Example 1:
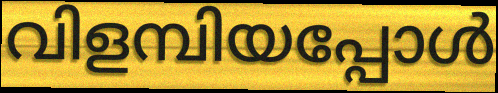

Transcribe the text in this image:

വിളമ്പിയപ്പോൾ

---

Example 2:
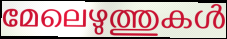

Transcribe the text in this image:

മേലെഴുത്തുകൾ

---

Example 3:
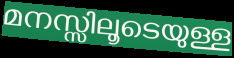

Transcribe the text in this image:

മനസ്സിലൂടെയുള്ള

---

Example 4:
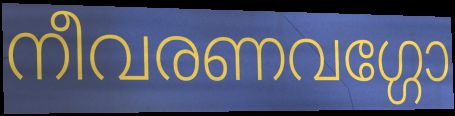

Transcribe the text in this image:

നീവരണവഗ്ഗോ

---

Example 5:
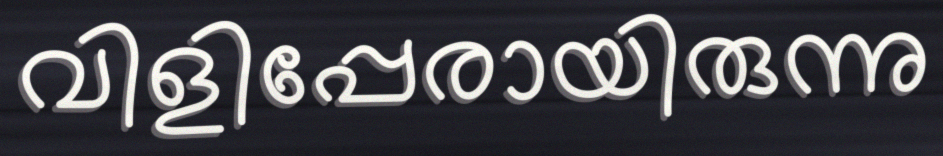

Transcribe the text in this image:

വിളിപ്പേരായിരുന്നു